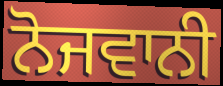
ਨੋਜਵਾਨੀ